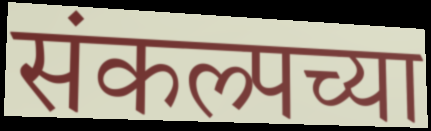
संकल्पच्या